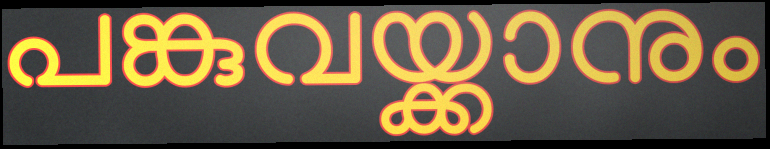
പങ്കുവയ്ക്കാനും